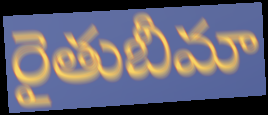
రైతుబీమా